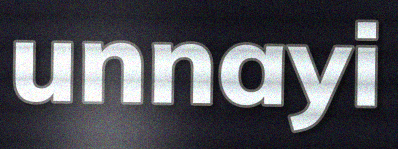
unnayi